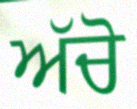
ਅੱਚੋ